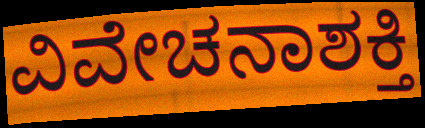
ವಿವೇಚನಾಶಕ್ತಿ